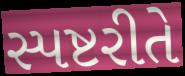
સ્પષ્ટરીતે